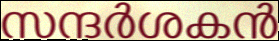
സന്ദർശകൻ